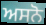
ਅਸਨੋ